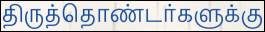
திருத்தொண்டர்களுக்கு